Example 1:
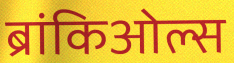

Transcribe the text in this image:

ब्रांकिओल्स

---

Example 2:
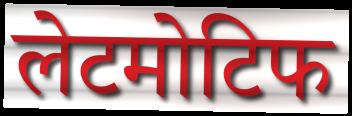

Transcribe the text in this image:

लेटमोटिफ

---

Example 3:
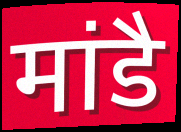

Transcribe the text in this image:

मांडै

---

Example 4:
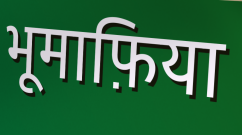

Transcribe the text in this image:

भूमाफ़िया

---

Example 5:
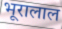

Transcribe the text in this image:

भूरालाल